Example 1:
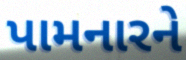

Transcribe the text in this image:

પામનારને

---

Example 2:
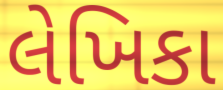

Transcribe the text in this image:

લેખિકા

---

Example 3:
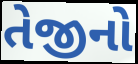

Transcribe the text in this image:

તેજીનો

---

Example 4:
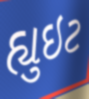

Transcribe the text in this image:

હ્યુઇટ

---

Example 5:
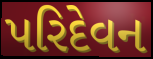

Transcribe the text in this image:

પરિદેવન